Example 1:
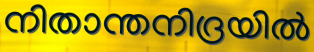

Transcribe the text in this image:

നിതാന്തനിദ്രയിൽ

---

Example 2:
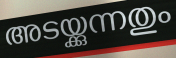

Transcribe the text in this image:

അടയ്ക്കുന്നതും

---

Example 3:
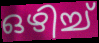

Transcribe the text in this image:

ഒഴിച്ച്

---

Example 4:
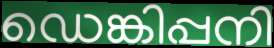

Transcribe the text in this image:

ഡെങ്കിപ്പനി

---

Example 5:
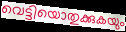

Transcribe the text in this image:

വെട്ടിയൊതുക്കുകയും